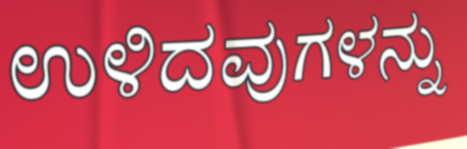
ಉಳಿದವುಗಳನ್ನು